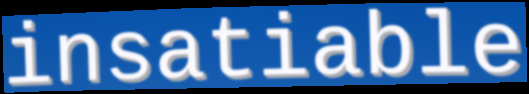
insatiable